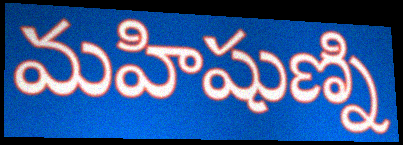
మహిషుణ్ని